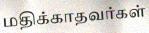
மதிக்காதவர்கள்